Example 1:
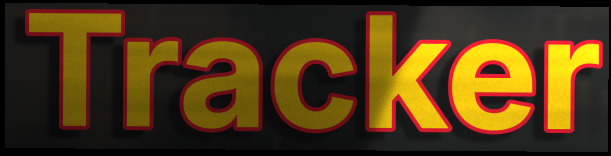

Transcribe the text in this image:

Tracker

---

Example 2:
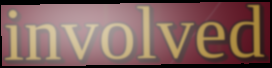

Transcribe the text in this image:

involved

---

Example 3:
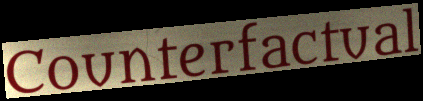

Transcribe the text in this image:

Counterfactual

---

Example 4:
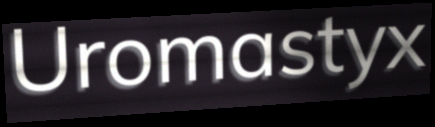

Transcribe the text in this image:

Uromastyx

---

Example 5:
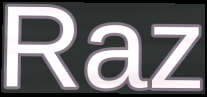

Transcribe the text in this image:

Raz